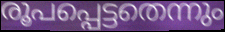
രൂപപ്പെട്ടതെന്നും